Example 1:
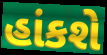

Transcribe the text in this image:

હાંકશે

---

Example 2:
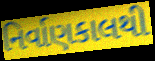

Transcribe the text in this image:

નિર્વાણકાલથી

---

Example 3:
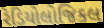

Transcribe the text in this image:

રેડિયોલોજિકલ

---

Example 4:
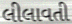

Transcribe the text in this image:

લીલાવતી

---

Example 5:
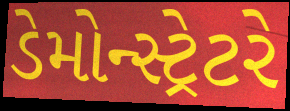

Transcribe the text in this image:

ડેમોન્સ્ટ્રેટરે